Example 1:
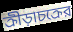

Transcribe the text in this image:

ক্রীড়াচক্রের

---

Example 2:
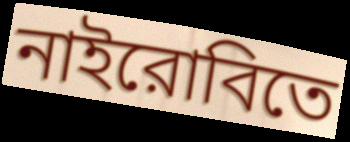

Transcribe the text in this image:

নাইরোবিতে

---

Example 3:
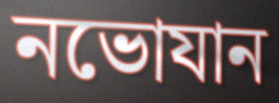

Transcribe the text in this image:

নভোযান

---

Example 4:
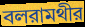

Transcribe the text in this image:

বলরামথীর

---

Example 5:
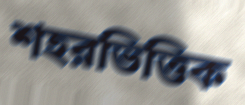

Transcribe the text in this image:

শহরভিত্তিক